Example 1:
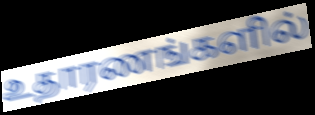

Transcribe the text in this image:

உதாரணங்களில்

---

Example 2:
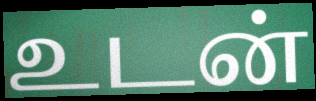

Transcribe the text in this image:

உடன்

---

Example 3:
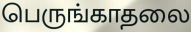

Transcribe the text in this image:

பெருங்காதலை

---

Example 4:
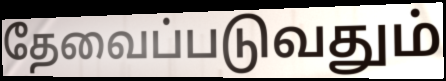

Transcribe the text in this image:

தேவைப்படுவதும்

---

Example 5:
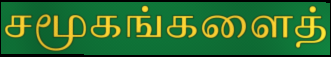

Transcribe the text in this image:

சமூகங்களைத்